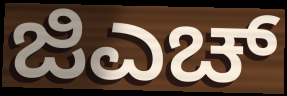
ಜಿಎಚ್